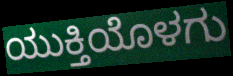
ಯುಕ್ತಿಯೊಳಗು